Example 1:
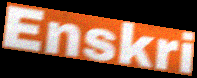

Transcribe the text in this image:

Enskri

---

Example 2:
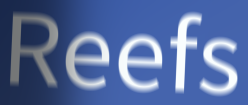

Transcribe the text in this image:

Reefs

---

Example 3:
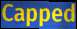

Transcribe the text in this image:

Capped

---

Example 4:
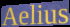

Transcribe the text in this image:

Aelius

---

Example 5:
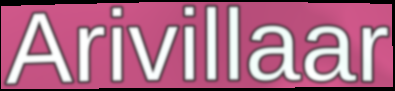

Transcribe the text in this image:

Arivillaar